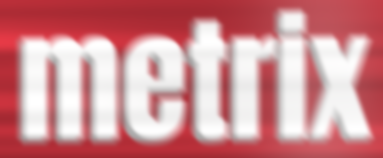
metrix